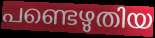
പണ്ടെഴുതിയ